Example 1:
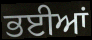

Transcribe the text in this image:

ਭਈਆਂ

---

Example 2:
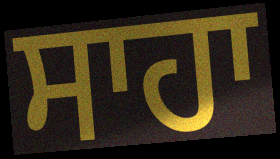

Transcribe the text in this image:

ਸਾਹਾ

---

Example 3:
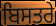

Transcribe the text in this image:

ਬਿਸਤਰੇ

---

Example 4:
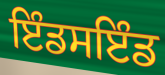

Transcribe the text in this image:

ਇੰਡਸਇੰਡ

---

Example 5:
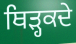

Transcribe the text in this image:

ਥਿੜ੍ਹਕਦੇ